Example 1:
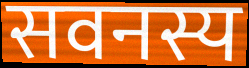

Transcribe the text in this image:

सवनस्य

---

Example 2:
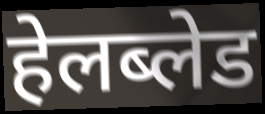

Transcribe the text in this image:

हेलब्लेड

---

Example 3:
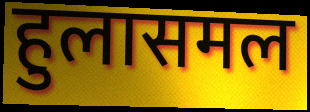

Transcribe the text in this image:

हुलासमल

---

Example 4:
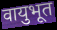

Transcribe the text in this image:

वायुभूत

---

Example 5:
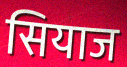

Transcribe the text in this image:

सियाज